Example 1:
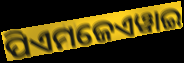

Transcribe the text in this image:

ପିଏମଜେଏୱାଇ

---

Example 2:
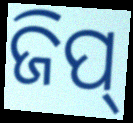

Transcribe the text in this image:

ଜିପ୍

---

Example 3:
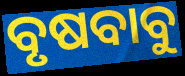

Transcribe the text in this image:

ବୃଷବାବୁ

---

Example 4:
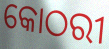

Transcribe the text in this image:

କୋଠରୀ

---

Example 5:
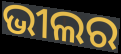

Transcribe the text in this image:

ଭୀଲର